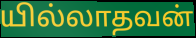
யில்லாதவன்